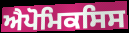
ਐਪੋਮਿਕਸਿਸ